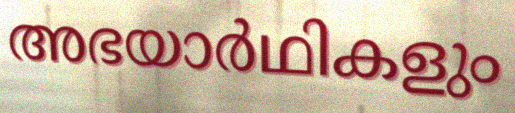
അഭയാർഥികളും